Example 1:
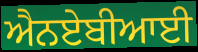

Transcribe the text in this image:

ਐਨਏਬੀਆਈ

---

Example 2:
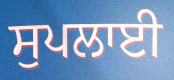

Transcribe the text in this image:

ਸੁਪਲਾਈ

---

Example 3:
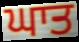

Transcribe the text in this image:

ਘਾਤ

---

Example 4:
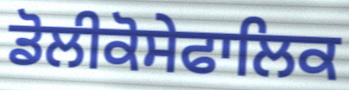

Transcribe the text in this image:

ਡੋਲੀਕੋਸੇਫਾਲਿਕ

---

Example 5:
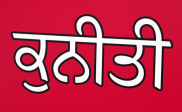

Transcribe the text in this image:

ਕੁਨੀਤੀ